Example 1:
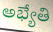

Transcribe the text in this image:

అభ్యేతి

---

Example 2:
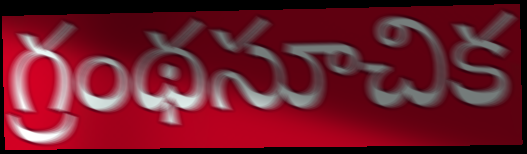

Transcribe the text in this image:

గ్రంథసూచిక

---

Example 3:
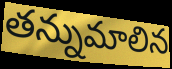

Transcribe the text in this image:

తన్నుమాలిన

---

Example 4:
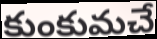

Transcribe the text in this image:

కుంకుమచే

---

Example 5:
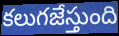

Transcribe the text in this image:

కలుగజేస్తుంది